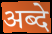
अब्दे